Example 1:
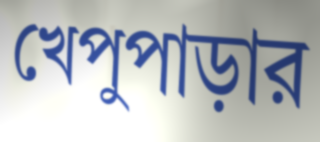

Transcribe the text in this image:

খেপুপাড়ার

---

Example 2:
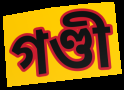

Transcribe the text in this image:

গণ্ডী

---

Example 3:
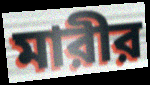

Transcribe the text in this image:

মারীর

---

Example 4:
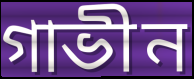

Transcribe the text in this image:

গাভীন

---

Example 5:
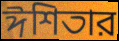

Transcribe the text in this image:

ঈশিতার